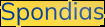
Spondias